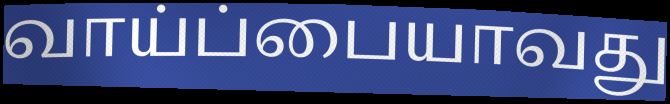
வாய்ப்பையாவது